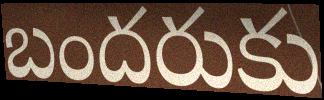
బందరుకు